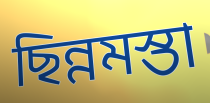
ছিন্নমস্তা